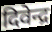
दिवेन्द्र